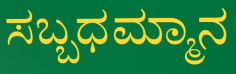
ಸಬ್ಬಧಮ್ಮಾನ